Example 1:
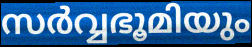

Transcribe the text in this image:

സർവ്വഭൂമിയും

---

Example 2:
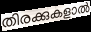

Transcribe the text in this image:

തിരക്കുകളാൽ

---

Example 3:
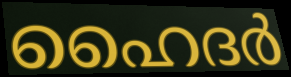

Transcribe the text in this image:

ഹൈദർ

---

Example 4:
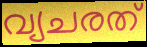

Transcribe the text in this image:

വ്യചരത്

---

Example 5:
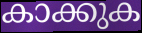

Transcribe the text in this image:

കാക്കുക